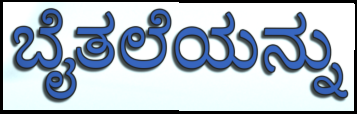
ಬೈತಲೆಯನ್ನು